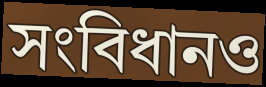
সংবিধানও